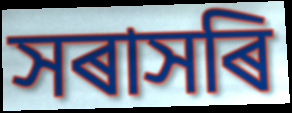
সৰাসৰি